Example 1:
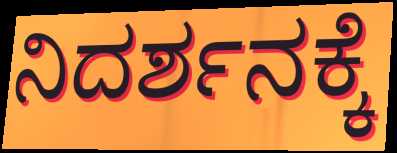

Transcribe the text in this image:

ನಿದರ್ಶನಕ್ಕೆ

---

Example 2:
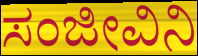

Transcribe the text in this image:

ಸಂಜೀವಿನಿ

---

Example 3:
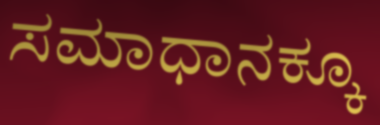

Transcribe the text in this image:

ಸಮಾಧಾನಕ್ಕೂ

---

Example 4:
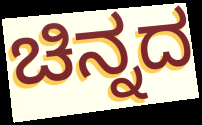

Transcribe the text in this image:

ಚಿನ್ನದ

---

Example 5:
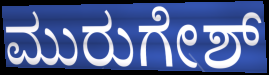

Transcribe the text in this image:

ಮುರುಗೇಶ್